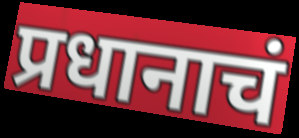
प्रधानाचं